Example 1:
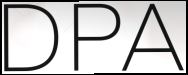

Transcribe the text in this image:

DPA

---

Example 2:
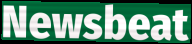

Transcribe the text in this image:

Newsbeat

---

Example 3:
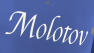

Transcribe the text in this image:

Molotov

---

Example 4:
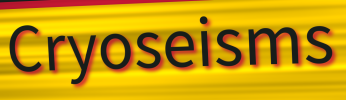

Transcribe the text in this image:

Cryoseisms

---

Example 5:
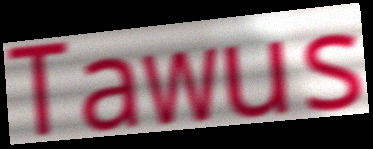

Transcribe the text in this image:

Tawus